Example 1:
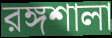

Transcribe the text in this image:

রঙ্গশালা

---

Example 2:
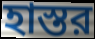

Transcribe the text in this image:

হাস্তর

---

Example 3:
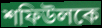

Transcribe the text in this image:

শফিউলকে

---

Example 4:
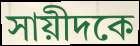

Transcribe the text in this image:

সায়ীদকে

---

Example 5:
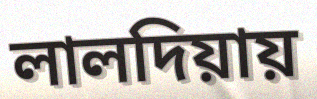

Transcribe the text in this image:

লালদিয়ায়